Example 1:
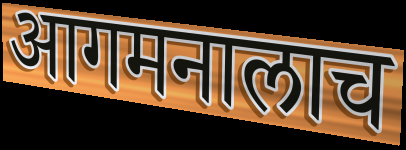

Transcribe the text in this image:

आगमनालाच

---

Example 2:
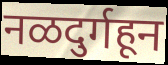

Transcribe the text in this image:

नळदुर्गहून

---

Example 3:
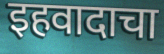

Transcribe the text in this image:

इहवादाचा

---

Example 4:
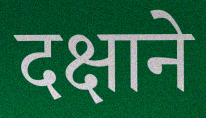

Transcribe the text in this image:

दक्षाने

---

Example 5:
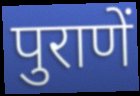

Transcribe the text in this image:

पुराणें